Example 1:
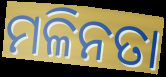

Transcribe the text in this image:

ମଳିନତା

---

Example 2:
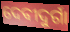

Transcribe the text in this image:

ଦେବୀଦୁର୍ଗା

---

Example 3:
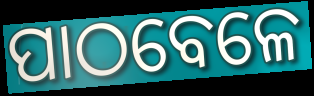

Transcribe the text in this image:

ପାଠବେଳେ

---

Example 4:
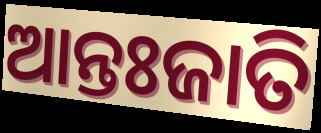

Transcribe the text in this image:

ଆନ୍ତଃଜାତି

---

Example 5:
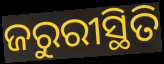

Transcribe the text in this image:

ଜରୁରୀସ୍ଥିତି